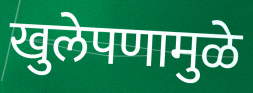
खुलेपणामुळे